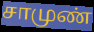
சாமுண்